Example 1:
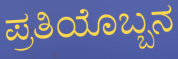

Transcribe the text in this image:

ಪ್ರತಿಯೊಬ್ಬನ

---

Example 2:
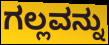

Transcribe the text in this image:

ಗಲ್ಲವನ್ನು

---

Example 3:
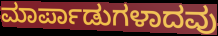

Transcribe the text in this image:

ಮಾರ್ಪಾಡುಗಳಾದವು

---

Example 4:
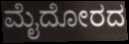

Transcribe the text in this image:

ಮೈದೋರದ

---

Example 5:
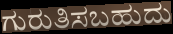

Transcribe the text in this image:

ಗುರುತಿಸಬಹುದು